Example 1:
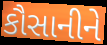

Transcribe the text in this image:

કૌસાનીને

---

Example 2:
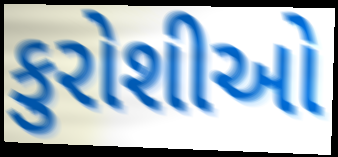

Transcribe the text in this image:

કુરોશીઓ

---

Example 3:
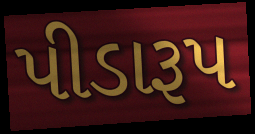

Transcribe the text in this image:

પીડારૂપ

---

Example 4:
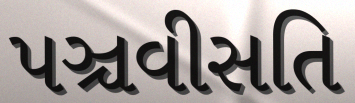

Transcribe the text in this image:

પઞ્ચવીસતિ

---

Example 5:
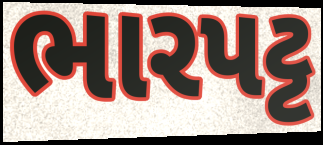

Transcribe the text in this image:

ભારપટ્ટ